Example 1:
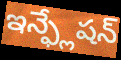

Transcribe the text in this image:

ఇన్ఫ్లేషన్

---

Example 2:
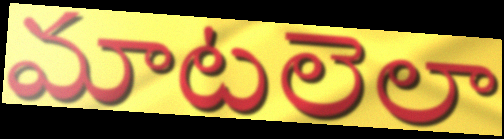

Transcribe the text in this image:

మాటలెలా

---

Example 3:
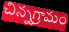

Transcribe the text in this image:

చిన్నగ్రామం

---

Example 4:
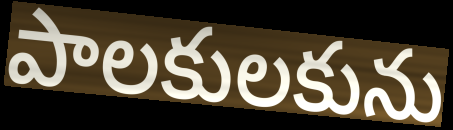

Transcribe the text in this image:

పాలకులకును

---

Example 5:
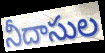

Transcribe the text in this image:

నీదాసుల